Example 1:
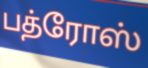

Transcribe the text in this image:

பத்ரோஸ்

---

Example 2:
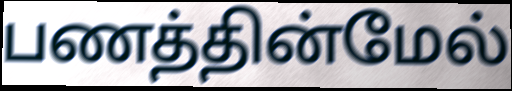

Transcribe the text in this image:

பணத்தின்மேல்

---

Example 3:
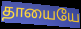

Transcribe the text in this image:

தாயையே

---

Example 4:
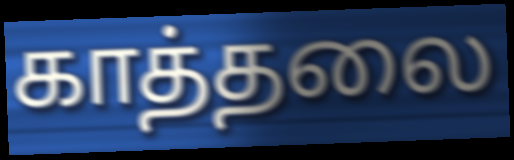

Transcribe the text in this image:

காத்தலை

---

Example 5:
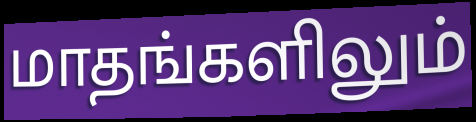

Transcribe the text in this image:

மாதங்களிலும்